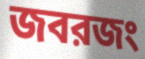
জবরজং